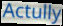
Actully